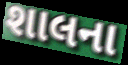
શાલના